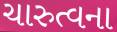
ચારુત્વના